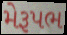
મેરૂપભ